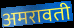
अमरावती